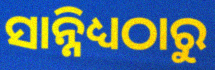
ସାନ୍ନିଧ୍ୟଠାରୁ